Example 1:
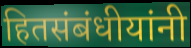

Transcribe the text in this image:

हितसंबंधीयांनी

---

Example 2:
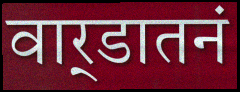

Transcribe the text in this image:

वार्डातनं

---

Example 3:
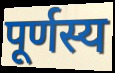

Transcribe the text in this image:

पूर्णस्य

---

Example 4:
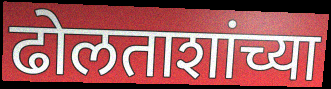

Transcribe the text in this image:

ढोलताशांच्या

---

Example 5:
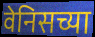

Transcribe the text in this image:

वेनिसच्या